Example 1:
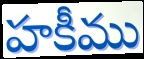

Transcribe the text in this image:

హకీము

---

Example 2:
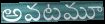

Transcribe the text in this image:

అవటమూ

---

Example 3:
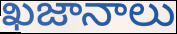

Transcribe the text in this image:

ఖజానాలు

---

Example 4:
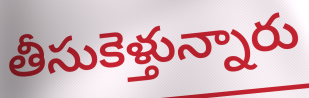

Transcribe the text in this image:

తీసుకెళ్తున్నారు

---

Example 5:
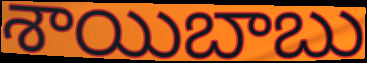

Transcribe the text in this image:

శాయిబాబు